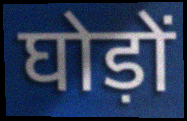
घोड़ों